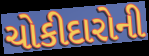
ચોકીદારોની